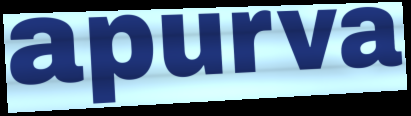
apurva